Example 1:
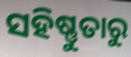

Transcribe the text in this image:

ସହିଷ୍ଣୁତାରୁ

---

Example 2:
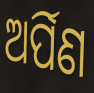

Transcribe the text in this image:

ଅର୍ପିଣ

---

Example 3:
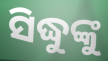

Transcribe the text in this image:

ସିଦ୍ଧୁଙ୍କୁ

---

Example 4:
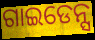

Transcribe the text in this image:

ଗାଇଡେନ୍ସ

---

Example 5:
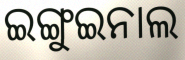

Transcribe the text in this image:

ଇଙ୍ଗୁଇନାଲ